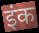
इंक